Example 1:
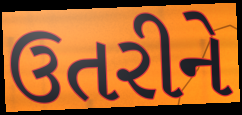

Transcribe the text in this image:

ઉતરીને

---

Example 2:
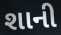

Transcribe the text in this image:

શાની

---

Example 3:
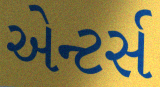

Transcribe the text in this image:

એન્ટર્સ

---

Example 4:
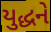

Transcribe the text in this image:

યુદ્ધને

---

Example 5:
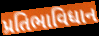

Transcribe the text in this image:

પ્રતિભાવિધાન